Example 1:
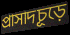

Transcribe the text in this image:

প্রাসাদচূড়ে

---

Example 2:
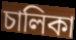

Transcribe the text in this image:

চালিকা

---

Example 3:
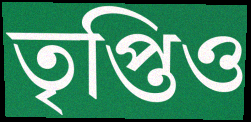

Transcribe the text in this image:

তৃপ্তিও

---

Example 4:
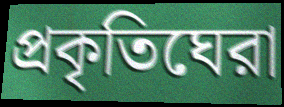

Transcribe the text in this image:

প্রকৃতিঘেরা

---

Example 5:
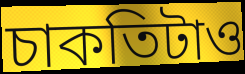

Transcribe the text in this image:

চাকতিটাও